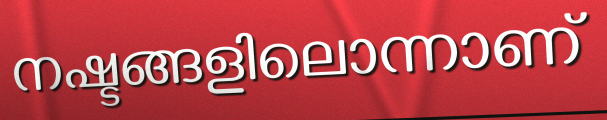
നഷ്ടങ്ങളിലൊന്നാണ്